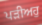
ਪੜੀਅਹੁ